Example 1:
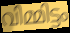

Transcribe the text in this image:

വിമ്മിട്ടം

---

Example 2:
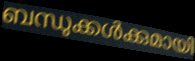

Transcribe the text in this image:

ബന്ധുക്കൾക്കുമായി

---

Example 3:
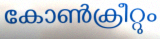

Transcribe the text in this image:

കോൺക്രീറ്റും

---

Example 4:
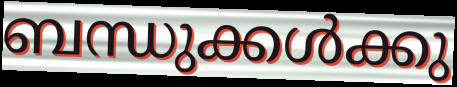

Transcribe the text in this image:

ബന്ധുക്കൾക്കു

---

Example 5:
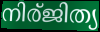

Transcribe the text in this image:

നിര്ജിത്യ